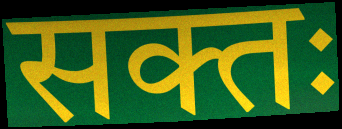
सक्तः